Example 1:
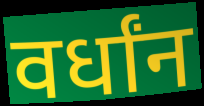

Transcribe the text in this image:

वर्धांन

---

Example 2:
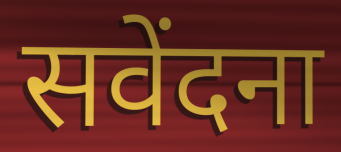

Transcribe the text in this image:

सवेंदना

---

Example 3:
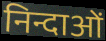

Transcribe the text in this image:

निन्दाओं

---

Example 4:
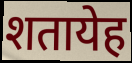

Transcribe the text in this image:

शतायेह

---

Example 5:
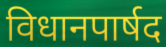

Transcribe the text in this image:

विधानपार्षद